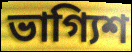
ভাগ্যিশ